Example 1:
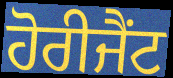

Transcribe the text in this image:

ਹੋਰੀਜੈਂਟ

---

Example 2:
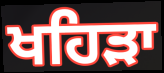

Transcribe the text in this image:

ਖਹਿਡ਼ਾ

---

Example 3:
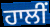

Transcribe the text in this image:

ਹਾਲੀਂ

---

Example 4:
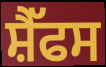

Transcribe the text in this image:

ਸ਼ੈੱਫਸ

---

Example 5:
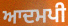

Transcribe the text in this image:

ਆਦਮਪੀ